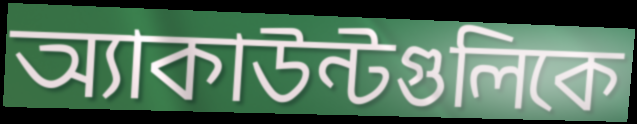
অ্যাকাউন্টগুলিকে